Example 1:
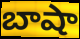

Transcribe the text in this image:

బాషా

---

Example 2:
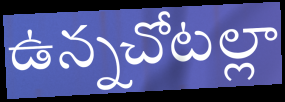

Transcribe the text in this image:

ఉన్నచోటల్లా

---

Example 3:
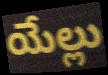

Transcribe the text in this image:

యేల్లు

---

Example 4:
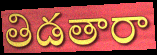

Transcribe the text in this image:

తిడతారా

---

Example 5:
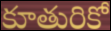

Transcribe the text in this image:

కూతురికో